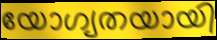
യോഗ്യതയായി